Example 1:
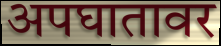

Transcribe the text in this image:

अपघातावर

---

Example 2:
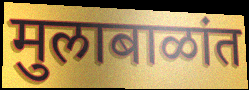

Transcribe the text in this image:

मुलाबाळांत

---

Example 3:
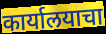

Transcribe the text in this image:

कार्यालयाचा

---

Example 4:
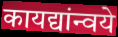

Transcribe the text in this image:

कायद्यांन्वये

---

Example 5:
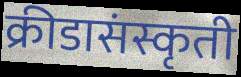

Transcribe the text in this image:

क्रीडासंस्कृती